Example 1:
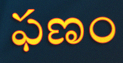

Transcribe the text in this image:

ఫణం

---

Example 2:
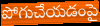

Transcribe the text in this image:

పోగుచేయడంపై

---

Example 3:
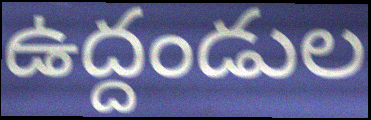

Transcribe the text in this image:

ఉద్దండుల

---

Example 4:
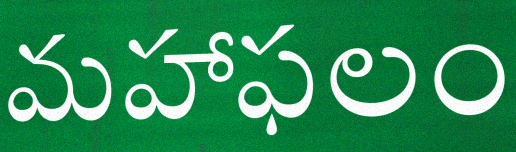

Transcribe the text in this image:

మహాఫలం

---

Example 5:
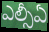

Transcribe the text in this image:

ఎల్సీఏ